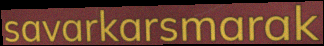
savarkarsmarak